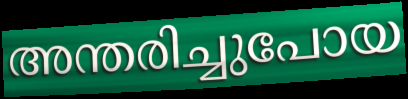
അന്തരിച്ചുപോയ